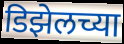
डिझेलच्या